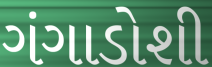
ગંગાડોશી